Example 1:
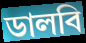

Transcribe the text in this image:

ডালবি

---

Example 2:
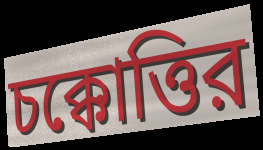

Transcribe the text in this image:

চক্কোত্তির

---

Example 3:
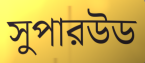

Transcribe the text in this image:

সুপারউড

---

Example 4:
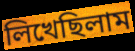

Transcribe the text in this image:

লিখেছিলাম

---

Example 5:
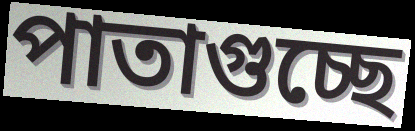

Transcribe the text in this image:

পাতাগুচ্ছে